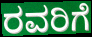
ರವರಿಗೆ